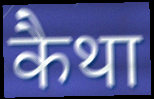
कैथा